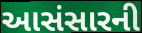
આસંસારની